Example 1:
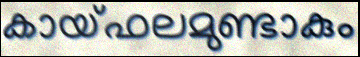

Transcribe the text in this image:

കായ്ഫലമുണ്ടാകും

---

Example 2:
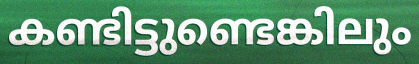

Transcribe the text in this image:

കണ്ടിട്ടുണ്ടെങ്കിലും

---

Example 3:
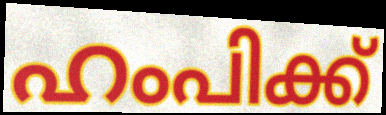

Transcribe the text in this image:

ഹംപിക്ക്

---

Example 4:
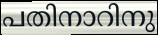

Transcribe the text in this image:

പതിനാറിനു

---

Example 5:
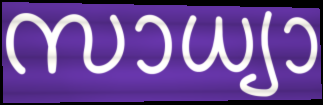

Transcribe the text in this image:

സാധ്യാ